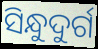
ସିନ୍ଧୁଦୁର୍ଗ